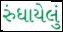
રુંધાયેલું